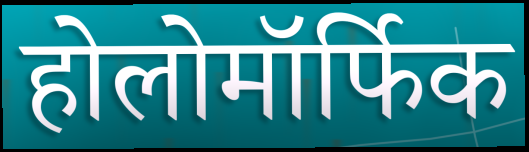
होलोमॉर्फिक